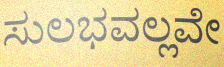
ಸುಲಭವಲ್ಲವೇ